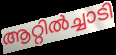
ആറ്റിൽച്ചാടി